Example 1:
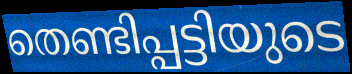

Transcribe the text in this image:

തെണ്ടിപ്പട്ടിയുടെ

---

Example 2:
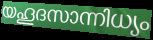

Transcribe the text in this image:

യഹൂദസാന്നിധ്യം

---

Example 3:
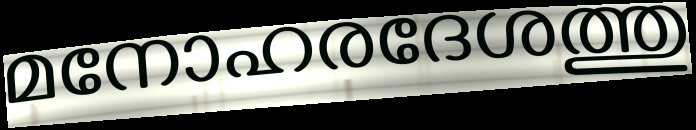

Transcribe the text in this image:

മനോഹരദേശത്തു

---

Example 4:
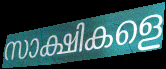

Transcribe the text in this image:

സാക്ഷികളെ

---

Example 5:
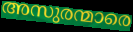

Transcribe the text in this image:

അസുരന്മാരെ